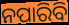
ନପାରିବି